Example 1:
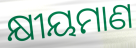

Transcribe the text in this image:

କ୍ଷୀୟମାଣ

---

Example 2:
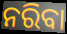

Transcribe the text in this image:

ନରିବା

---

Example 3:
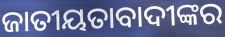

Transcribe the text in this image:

ଜାତୀୟତାବାଦୀଙ୍କର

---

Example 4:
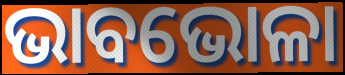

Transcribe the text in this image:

ଭାବଭୋଳା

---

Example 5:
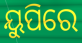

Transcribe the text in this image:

ୟୁପିରେ